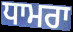
ਧਾਮਰਾ